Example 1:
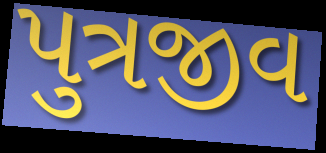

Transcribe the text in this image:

પુત્રજીવ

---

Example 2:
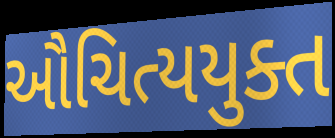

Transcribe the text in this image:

ઔચિત્યયુક્ત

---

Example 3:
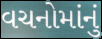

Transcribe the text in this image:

વચનોમાંનું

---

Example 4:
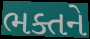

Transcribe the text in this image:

ભક્તને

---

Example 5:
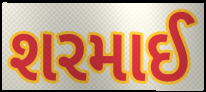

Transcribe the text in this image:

શરમાઈ